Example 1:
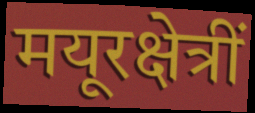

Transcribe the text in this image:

मयूरक्षेत्रीं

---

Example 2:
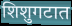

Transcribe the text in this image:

शिशुगटात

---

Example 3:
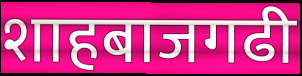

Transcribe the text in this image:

शाहबाजगढी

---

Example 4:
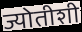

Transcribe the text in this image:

ज्योतीशी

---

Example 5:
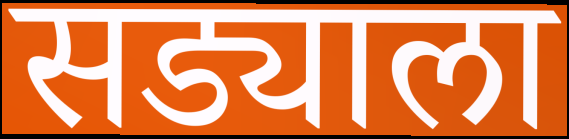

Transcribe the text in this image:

सड्याला